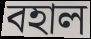
বহাল